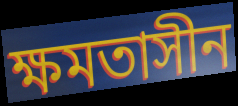
ক্ষমতাসীন